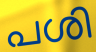
പശി